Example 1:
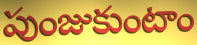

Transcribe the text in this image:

పుంజుకుంటాం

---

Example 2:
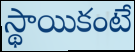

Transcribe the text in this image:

స్థాయికంటే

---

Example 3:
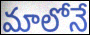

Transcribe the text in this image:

మాలోనే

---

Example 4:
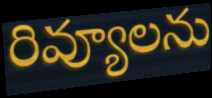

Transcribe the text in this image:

రివ్యూలను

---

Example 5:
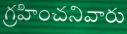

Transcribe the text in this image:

గ్రహించనివారు